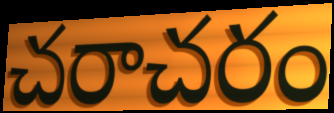
చరాచరం